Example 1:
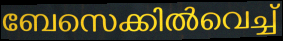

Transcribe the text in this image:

ബേസെക്കിൽവെച്ച്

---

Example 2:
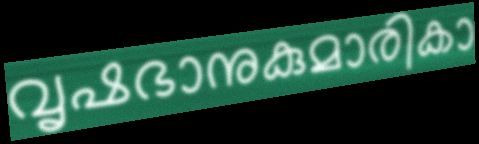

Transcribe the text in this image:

വൃഷഭാനുകുമാരികാ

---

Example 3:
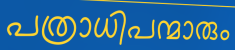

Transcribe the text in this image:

പത്രാധിപന്മാരും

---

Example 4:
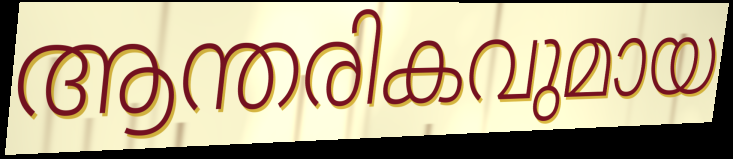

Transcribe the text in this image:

ആന്തരികവുമായ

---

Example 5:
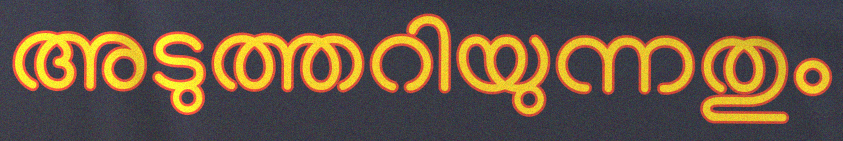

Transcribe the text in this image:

അടുത്തറിയുന്നതും